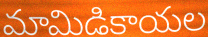
మామిడికాయల